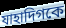
যাহাদিগকে